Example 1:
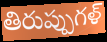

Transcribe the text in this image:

తిరుప్పుగళ్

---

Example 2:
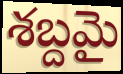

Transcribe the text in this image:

శబ్దమై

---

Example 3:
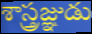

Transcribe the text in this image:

శాస్త్రజ్ఞుడు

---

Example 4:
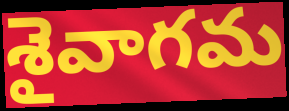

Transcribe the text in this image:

శైవాగమ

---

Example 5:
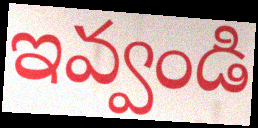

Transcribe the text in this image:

ఇవ్వండి